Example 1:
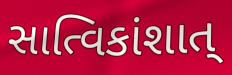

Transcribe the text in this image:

સાત્વિકાંશાત્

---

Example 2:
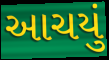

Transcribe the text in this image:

આચયું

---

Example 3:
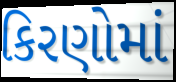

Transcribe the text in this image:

કિરણોમાં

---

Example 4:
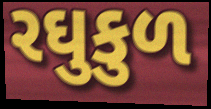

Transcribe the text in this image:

રઘુકુળ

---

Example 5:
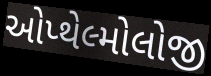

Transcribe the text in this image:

ઓપ્થેલ્મોલોજી